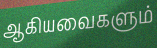
ஆகியவைகளும்